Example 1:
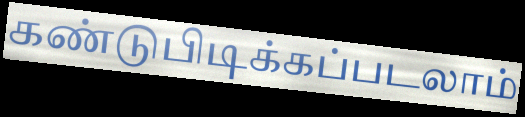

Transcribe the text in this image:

கண்டுபிடிக்கப்படலாம்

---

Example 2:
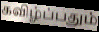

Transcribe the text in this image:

கவிழ்ப்பதும்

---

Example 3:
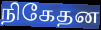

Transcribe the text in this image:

நிகேதன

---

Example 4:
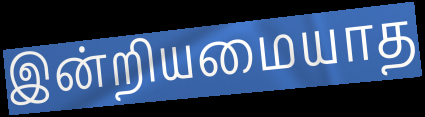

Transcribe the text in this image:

இன்றியமையாத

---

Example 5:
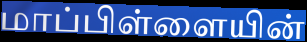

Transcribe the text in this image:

மாப்பிள்ளையின்